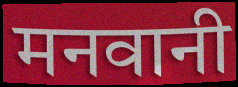
मनवानी